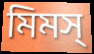
মিমস্